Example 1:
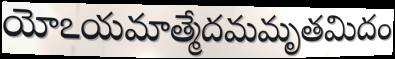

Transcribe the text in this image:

యోఽయమాత్మేదమమృతమిదం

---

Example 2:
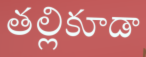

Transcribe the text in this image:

తల్లికూడా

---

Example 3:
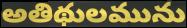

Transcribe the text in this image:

అతిథులమును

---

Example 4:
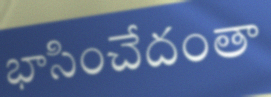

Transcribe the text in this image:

భాసించేదంతా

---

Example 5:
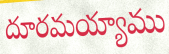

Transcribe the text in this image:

దూరమయ్యాము